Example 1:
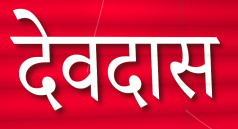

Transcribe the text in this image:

देवदास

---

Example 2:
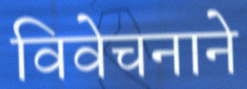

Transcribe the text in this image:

विवेचनाने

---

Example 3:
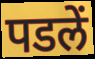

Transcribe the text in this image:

पडलें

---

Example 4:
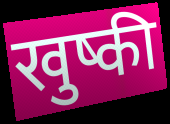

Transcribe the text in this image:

खुष्की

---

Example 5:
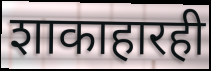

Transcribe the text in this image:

शाकाहारही